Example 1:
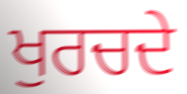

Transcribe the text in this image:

ਖੁਰਚਦੇ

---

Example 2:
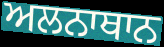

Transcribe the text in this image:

ਅਲਨਾਥਾਨ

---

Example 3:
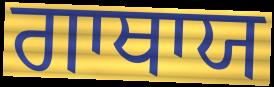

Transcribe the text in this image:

ਗਾਥਾਯ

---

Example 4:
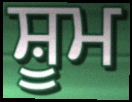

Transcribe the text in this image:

ਸ਼ੂਮ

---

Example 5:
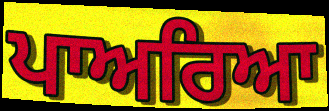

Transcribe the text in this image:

ਪਾਅਰਿਆ